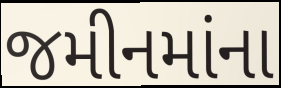
જમીનમાંના